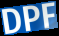
DPF